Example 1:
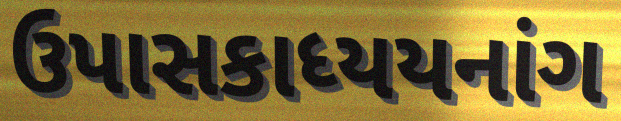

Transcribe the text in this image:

ઉપાસકાધ્યયનાંગ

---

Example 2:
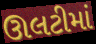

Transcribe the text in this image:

ઊલટીમાં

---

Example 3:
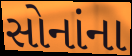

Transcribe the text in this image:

સોનાંના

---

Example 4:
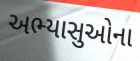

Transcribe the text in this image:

અભ્યાસુઓના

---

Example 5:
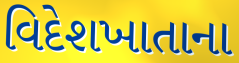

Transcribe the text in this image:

વિદેશખાતાના